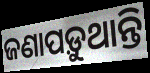
ଜଣାପଡ଼ୁଥାନ୍ତି